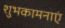
शुभकामनाएं